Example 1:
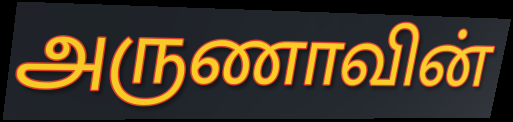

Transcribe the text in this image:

அருணாவின்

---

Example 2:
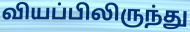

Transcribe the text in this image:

வியப்பிலிருந்து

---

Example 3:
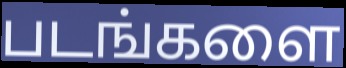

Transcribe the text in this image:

படங்களை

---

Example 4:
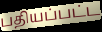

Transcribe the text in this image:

பதியப்பட்ட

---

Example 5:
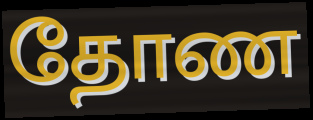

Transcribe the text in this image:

தோண